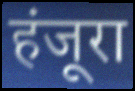
हंजूरा